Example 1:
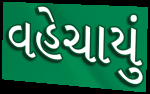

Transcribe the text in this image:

વહેચાયું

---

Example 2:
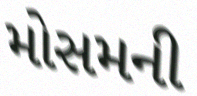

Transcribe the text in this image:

મોસમની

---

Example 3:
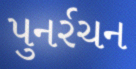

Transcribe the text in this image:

પુનર્રચન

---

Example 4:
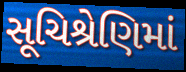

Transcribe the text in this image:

સૂચિશ્રેણિમાં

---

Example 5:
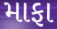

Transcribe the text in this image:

માફા